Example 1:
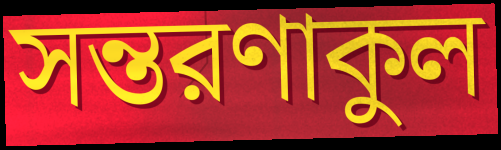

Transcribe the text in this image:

সন্তরণাকুল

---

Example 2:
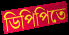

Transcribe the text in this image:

ডিপিপিতে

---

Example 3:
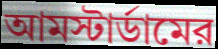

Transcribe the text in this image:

আমস্টার্ডামের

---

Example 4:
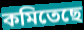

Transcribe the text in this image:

কমিতেছে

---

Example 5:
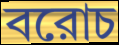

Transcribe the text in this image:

বরোচ